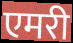
एमरी